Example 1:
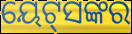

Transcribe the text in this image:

ୟେଟ୍‌ସଙ୍କର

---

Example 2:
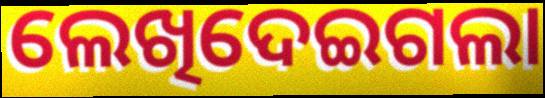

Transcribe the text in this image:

ଲେଖିଦେଇଗଲା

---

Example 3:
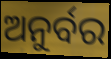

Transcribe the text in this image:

ଅନୁର୍ବର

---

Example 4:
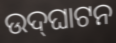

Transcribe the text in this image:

ଉଦ୍‌ଘାଟନ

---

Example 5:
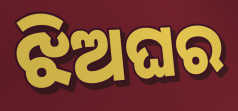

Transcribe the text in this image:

ଝିଅଘର